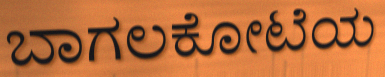
ಬಾಗಲಕೋಟೆಯ